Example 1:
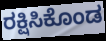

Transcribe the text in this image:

ರಕ್ಷಿಸಿಕೊಂಡ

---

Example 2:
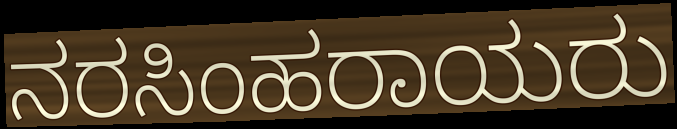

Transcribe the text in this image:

ನರಸಿಂಹರಾಯರು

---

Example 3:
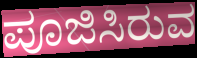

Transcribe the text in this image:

ಪೂಜಿಸಿರುವ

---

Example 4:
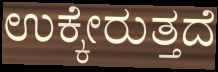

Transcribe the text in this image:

ಉಕ್ಕೇರುತ್ತದೆ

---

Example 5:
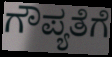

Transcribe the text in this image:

ಗೌಪ್ಯತೆಗೆ